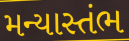
મન્યાસ્તંભ